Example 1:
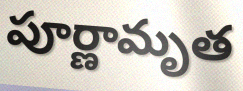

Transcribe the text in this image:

పూర్ణామృత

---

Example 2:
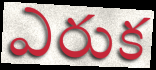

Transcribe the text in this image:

ఎరుక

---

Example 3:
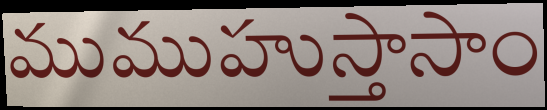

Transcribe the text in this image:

ముముహుస్తాసాం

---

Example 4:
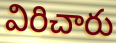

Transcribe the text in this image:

విరిచారు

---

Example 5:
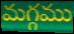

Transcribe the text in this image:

మగ్గము